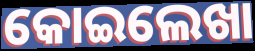
କୋଇଲେଖା